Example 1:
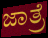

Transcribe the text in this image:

ಜಾತ್ರೆ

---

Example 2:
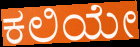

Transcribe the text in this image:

ಕಲಿಯೇ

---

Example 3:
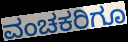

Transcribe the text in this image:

ವಂಚಕರಿಗೂ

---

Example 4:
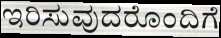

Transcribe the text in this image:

ಇರಿಸುವುದರೊಂದಿಗೆ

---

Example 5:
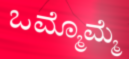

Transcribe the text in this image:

ಒಮ್ಮೊಮ್ಮೆ